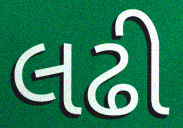
લઢી